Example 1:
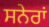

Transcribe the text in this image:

ਸਨੇਰਾਂ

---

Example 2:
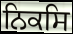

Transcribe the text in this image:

ਨਿਕਸਿ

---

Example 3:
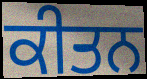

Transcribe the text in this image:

ਕੀਤਨ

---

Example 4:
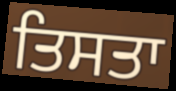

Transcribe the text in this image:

ਤਿਸਤਾ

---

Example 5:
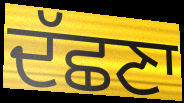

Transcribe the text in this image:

ਦੱਛਣਾ